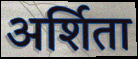
अर्शिता